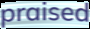
praised